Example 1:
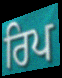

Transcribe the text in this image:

ਰਿਪ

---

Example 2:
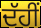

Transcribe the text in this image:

ਦੱਹੀਂ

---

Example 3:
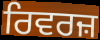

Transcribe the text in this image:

ਰਿਵਰਜ਼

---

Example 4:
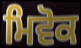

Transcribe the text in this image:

ਮਿਵੋਕ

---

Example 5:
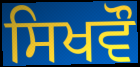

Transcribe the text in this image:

ਸਿਖਵੌ